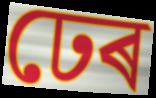
ঢেৰ